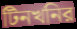
টিনখনির